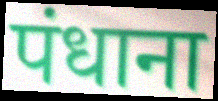
पंधाना